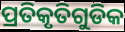
ପ୍ରତିକୃତିଗୁଡିକ